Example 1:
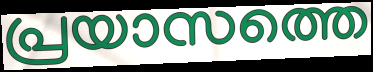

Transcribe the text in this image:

പ്രയാസത്തെ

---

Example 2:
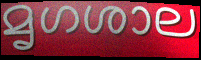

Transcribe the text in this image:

മൃഗശാല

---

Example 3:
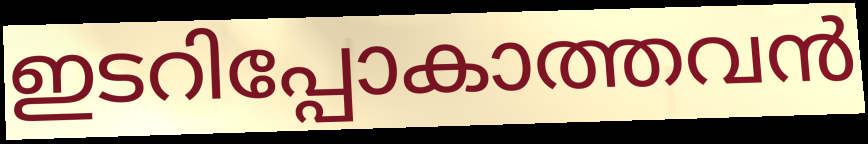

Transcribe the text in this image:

ഇടറിപ്പോകാത്തവൻ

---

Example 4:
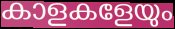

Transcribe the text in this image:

കാളകളേയും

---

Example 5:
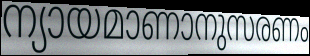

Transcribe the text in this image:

ന്യായമാണാനുസരണം